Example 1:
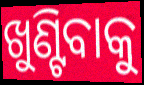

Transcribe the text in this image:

ଖୁଣ୍ଟିବାକୁ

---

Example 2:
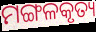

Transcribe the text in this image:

ମଙ୍ଗଳକୃତ୍ୟ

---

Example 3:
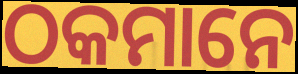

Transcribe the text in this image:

ଠକମାନେ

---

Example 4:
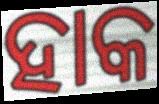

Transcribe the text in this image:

ହାକ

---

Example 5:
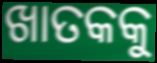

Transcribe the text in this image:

ଖାତକକୁ